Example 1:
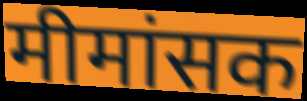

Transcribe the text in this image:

मीमांसक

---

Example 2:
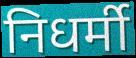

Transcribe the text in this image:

निधर्मी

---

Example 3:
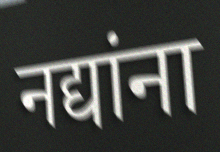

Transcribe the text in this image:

नद्यांना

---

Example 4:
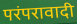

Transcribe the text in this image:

परंपरावादी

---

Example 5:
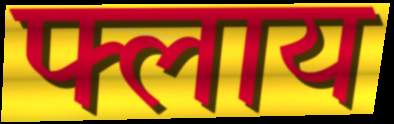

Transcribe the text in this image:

फ्लाय